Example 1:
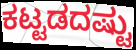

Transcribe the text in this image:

ಕಟ್ಟಡದಷ್ಟು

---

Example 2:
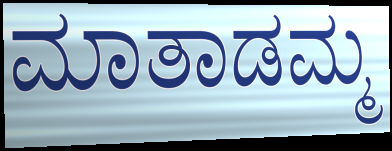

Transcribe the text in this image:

ಮಾತಾಡಮ್ಮ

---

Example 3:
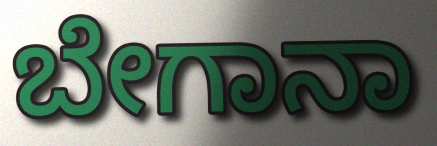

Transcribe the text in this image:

ಬೇಗಾನಾ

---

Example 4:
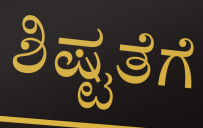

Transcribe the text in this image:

ಶಿಷ್ಟತೆಗೆ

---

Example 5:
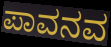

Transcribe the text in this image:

ಪಾವನವ